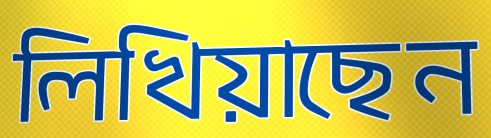
লিখিয়াছেন